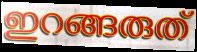
ഇറങ്ങരുത്